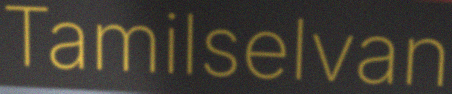
Tamilselvan